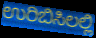
ಉರಿಬಿಸಿಲಲ್ಲಿ